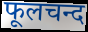
फूलचन्द